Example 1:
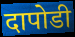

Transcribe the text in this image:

दापोडी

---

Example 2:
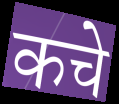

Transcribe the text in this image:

कचे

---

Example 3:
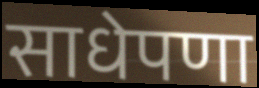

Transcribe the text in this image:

साधेपणा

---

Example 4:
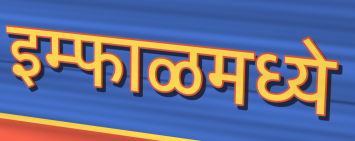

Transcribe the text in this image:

इम्फाळमध्ये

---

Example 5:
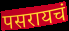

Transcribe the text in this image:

पसरायचं